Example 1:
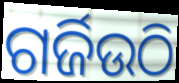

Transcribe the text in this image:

ଗର୍ଜିଉଠି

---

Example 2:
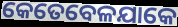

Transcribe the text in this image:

କେତେବେଳଯାକେ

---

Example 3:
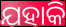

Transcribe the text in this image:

ଯହାକି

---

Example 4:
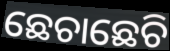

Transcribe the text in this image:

ଛେଚାଛେଚି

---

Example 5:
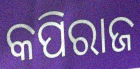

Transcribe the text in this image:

କପିରାଜ